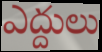
ఎద్దులు